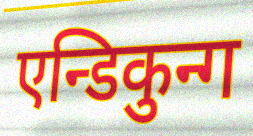
एन्डिकुन्ग